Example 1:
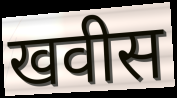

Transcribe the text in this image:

खवीस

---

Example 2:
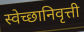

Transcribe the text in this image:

स्वेच्छानिवृत्ती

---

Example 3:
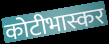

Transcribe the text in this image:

कोटीभास्कर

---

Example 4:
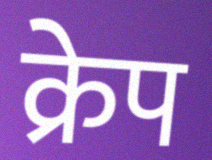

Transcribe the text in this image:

क्रेप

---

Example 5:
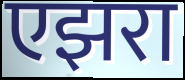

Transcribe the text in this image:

एझरा